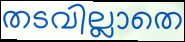
തടവില്ലാതെ